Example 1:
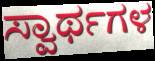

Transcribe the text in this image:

ಸ್ವಾರ್ಥಗಳ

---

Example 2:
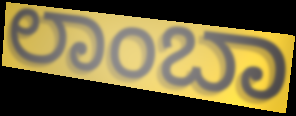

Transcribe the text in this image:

ಲಾಂಬಾ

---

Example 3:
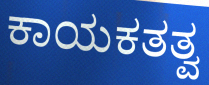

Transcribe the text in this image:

ಕಾಯಕತತ್ವ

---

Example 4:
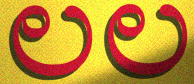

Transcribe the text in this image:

ಲಲ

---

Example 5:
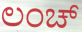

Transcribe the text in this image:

ಲಂಚ್